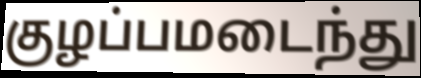
குழப்பமடைந்து